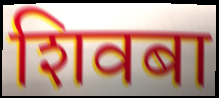
शिवबा